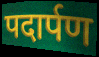
पदार्पण